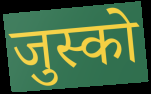
जुस्को